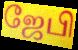
ஜேபி